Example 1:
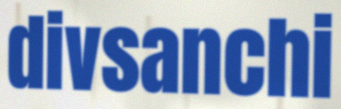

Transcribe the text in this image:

divsanchi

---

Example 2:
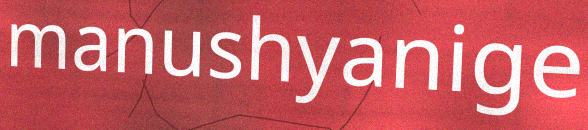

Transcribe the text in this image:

manushyanige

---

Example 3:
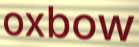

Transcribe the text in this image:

oxbow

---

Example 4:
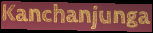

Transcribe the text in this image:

Kanchanjunga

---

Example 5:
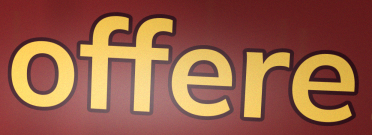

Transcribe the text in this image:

offere